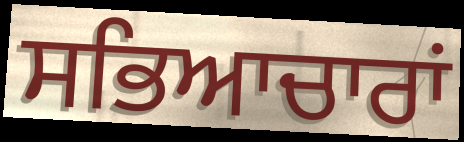
ਸਭਿਆਚਾਰਾਂ